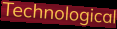
Technological